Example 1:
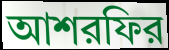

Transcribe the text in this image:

আশরফির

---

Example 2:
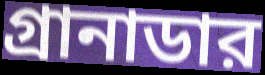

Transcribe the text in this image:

গ্রানাডার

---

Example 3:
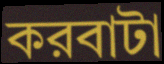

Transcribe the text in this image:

করবাটা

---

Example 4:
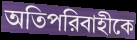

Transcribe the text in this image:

অতিপরিবাহীকে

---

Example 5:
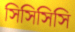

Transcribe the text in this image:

সিসিসিসি